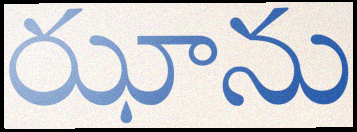
ఝాను